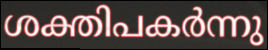
ശക്തിപകർന്നു